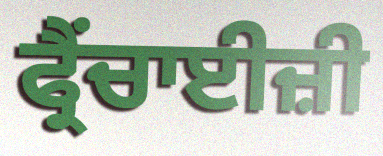
ਫ੍ਰੈਂਚਾਈਜ਼ੀ